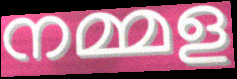
നമ്മള